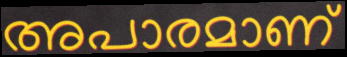
അപാരമാണ്